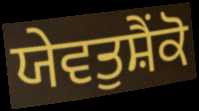
ਯੇਵਤੁਸ਼ੈਂਕੋ